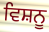
ਵਿਸ਼ਨੂ